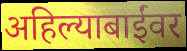
अहिल्याबाईंवर